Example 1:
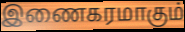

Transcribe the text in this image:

இணைகரமாகும்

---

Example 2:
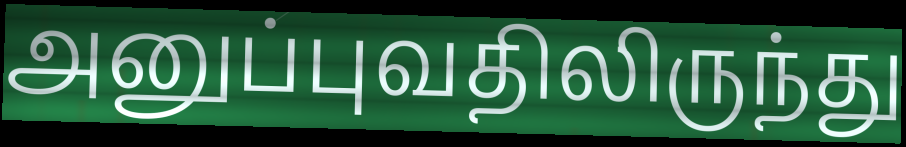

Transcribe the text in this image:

அனுப்புவதிலிருந்து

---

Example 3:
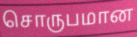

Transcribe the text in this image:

சொருபமான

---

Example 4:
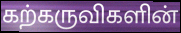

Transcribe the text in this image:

கற்கருவிகளின்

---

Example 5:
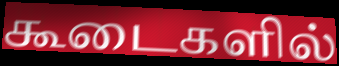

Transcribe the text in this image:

கூடைகளில்